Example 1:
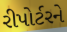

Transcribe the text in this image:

રીપોર્ટરને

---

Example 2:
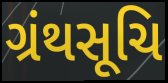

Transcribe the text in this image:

ગ્રંથસૂચિ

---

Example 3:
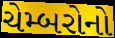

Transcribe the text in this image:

ચેમ્બરોનો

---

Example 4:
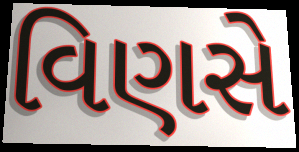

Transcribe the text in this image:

વિણસે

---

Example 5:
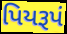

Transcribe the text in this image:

પિયરૂપં